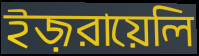
ইজ়রায়েলি